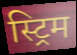
स्ट्रिम